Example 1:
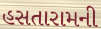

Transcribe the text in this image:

હસતારામની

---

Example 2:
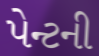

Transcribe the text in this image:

પેન્ટની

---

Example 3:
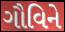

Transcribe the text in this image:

ગૌવિને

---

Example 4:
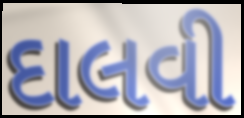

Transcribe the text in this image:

દાલવી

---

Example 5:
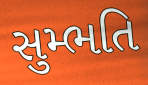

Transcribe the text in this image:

સુમ્ભતિ